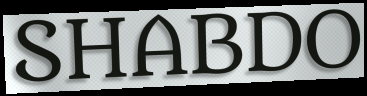
SHABDO